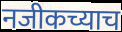
नजीकच्याच